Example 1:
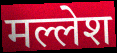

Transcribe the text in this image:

मल्लेश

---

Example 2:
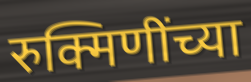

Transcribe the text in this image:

रुक्मिणींच्या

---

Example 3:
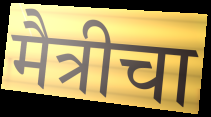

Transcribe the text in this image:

मैत्रीचा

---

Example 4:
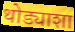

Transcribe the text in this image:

थोड्याशा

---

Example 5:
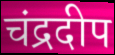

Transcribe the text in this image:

चंद्रदीप